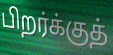
பிறர்க்குத்